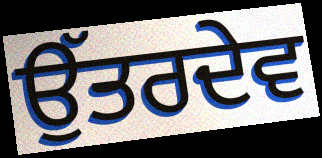
ਉੱਤਰਦੇਵ